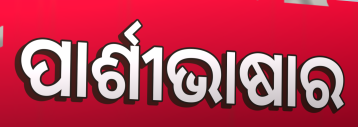
ପାର୍ଶୀଭାଷାର